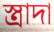
স্ত্রাদা